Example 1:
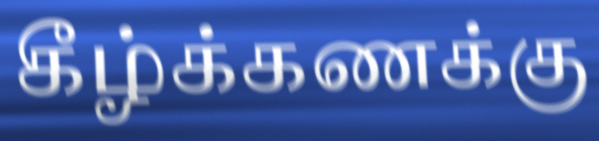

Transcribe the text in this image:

கீழ்க்கணக்கு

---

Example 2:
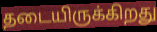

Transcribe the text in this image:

தடையிருக்கிறது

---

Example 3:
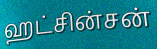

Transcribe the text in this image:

ஹட்சின்சன்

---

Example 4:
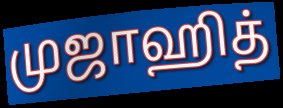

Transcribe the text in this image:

முஜாஹித்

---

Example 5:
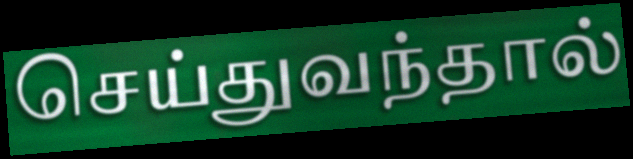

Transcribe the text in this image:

செய்துவந்தால்